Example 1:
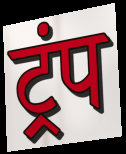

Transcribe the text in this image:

ट्रंप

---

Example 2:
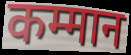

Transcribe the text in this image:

कम्मान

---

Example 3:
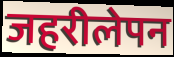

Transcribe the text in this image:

जहरीलेपन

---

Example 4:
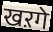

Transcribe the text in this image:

खऱगे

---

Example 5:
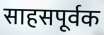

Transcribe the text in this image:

साहसपूर्वक